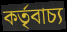
কর্তৃবাচ্য